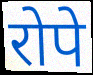
रोपे